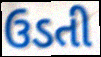
ઉડતી